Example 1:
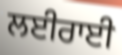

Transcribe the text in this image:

ਲਈਰਾਈ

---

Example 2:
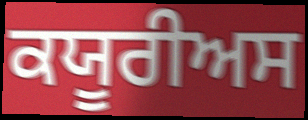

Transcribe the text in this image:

ਕਯੂਰੀਅਸ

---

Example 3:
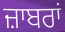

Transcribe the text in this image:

ਜ਼ਾਬਰਾਂ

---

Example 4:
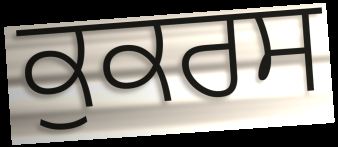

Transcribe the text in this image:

ਕੁਕਰਸ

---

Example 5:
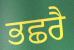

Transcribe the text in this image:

ਭਛਰੈ